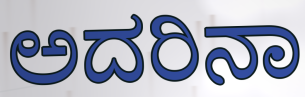
ಅದರಿನಾ